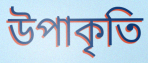
উপাকৃতি